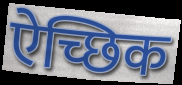
ऐच्छिक